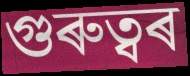
গুৰুত্বৰ